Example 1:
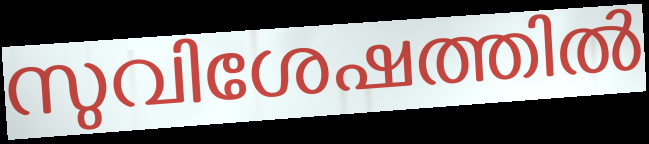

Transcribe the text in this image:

സുവിശേഷത്തിൽ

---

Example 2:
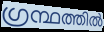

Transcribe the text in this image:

ഗ്രന്ഥത്തിൽ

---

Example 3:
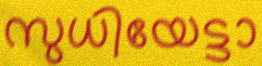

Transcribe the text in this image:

സുധിയേട്ടാ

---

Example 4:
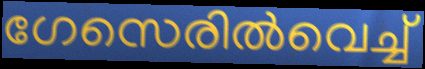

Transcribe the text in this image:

ഗേസെരിൽവെച്ച്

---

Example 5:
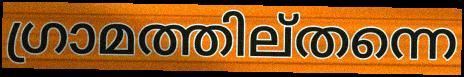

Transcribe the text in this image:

ഗ്രാമത്തില്തന്നെ